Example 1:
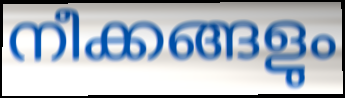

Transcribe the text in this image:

നീക്കങ്ങളും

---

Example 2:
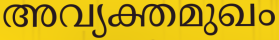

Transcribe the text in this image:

അവ്യക്തമുഖം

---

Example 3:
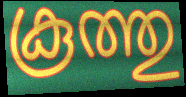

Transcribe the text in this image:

കൂത്തു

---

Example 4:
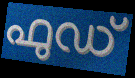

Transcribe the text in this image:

ഫുഡ്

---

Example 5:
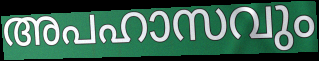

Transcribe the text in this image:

അപഹാസവും